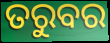
ତରୁବର